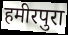
हमीरपुरा